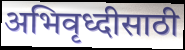
अभिवृध्दीसाठी